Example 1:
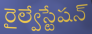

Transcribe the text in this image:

రైల్వేస్టేషన్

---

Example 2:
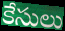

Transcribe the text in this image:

కేసులు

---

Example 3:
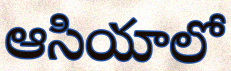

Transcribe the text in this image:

ఆసియాలో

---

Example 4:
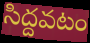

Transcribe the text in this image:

సిద్దవటం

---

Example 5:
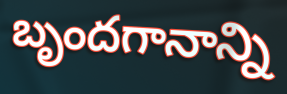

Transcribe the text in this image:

బృందగానాన్ని